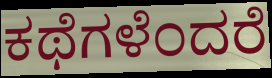
ಕಥೆಗಳೆಂದರೆ